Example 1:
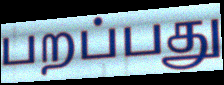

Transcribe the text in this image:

பறப்பது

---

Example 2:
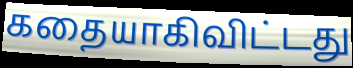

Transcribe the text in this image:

கதையாகிவிட்டது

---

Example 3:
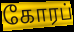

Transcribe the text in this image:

கோரப்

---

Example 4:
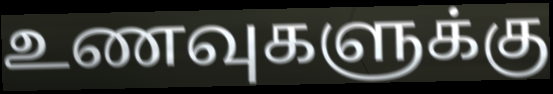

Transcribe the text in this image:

உணவுகளுக்கு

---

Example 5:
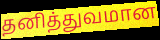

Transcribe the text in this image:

தனித்துவமான